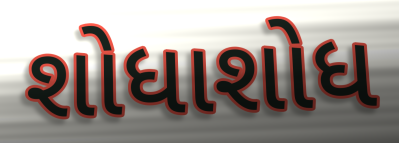
શોધાશોધ